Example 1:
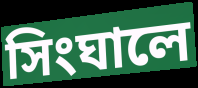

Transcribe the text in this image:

সিংঘালে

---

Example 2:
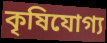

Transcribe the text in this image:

কৃষিযোগ্য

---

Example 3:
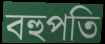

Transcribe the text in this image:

বহুপতি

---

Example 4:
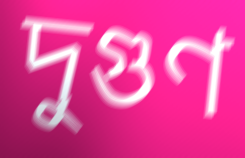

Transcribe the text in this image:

দুগুণ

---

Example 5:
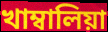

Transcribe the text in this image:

খাম্বালিয়া